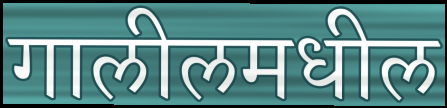
गालीलमधील